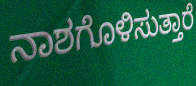
ನಾಶಗೊಳಿಸುತ್ತಾರೆ